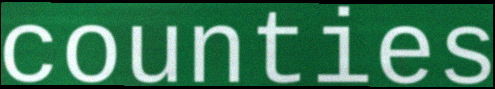
counties